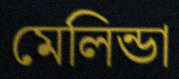
মেলিন্ডা